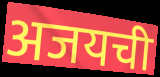
अजयची